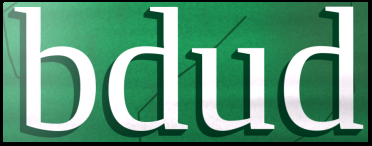
bdud